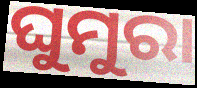
ଘୁମୁରା